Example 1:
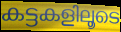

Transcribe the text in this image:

കട്ടകളിലൂടെ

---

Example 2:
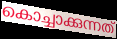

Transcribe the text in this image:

കൊച്ചാക്കുന്നത്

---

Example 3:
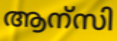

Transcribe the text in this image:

ആന്സി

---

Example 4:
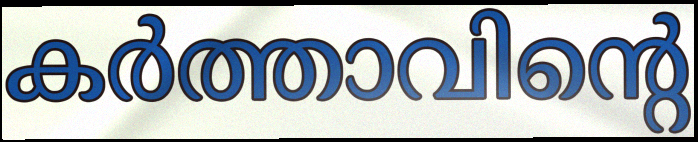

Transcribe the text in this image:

കർത്താവിന്റെ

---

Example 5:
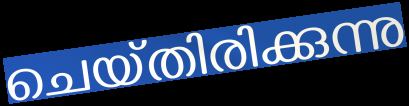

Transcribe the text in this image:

ചെയ്‌തിരിക്കുന്നു